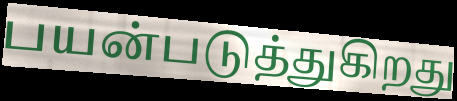
பயன்படுத்துகிறது